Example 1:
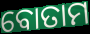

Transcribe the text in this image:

ବୋତାମ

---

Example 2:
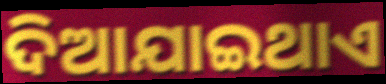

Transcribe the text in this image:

ଦିଆଯାଇଥାଏ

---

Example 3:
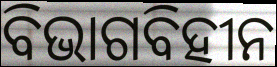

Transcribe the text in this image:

ବିଭାଗବିହୀନ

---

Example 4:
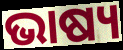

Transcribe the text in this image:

ଭାଷ୍ୟ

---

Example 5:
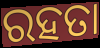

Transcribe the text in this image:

ରହତା